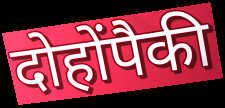
दोहोंपैकी